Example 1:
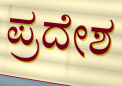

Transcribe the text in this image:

ಪ್ರದೇಶ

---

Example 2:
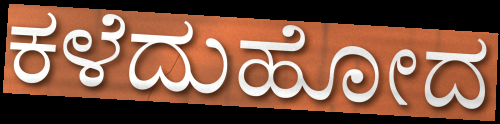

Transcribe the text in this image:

ಕಳೆದುಹೋದ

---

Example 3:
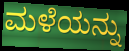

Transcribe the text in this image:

ಮಳೆಯನ್ನು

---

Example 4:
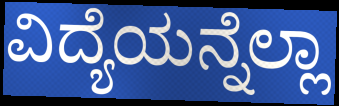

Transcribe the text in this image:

ವಿದ್ಯೆಯನ್ನೆಲ್ಲಾ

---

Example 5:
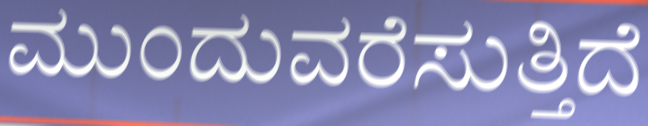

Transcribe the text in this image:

ಮುಂದುವರೆಸುತ್ತಿದೆ